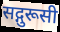
सद्गुरूसी